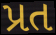
પ્રત